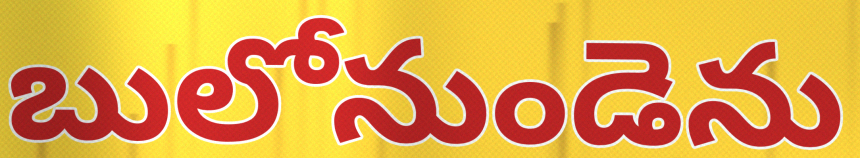
బులోనుండెను